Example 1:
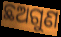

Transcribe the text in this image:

ଛଅଗୁଣ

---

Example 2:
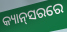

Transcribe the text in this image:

କ୍ୟାନ୍‌ସରରେ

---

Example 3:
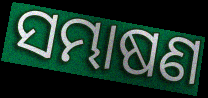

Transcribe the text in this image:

ସମ୍ଭାଷଣ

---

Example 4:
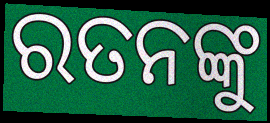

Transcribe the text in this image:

ରତନଙ୍କୁ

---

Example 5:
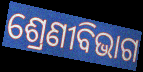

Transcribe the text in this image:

ଶ୍ରେଣୀବିଭାଗ